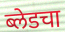
ब्लेडचा